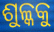
ଶୁଳ୍କକୁ